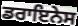
ਡਰਾਇਨੇਸ